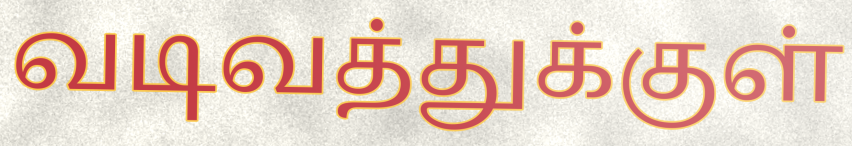
வடிவத்துக்குள்